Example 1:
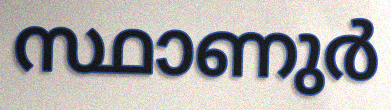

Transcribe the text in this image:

സ്ഥാണുർ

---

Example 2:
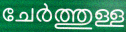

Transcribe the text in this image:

ചേർത്തുള്ള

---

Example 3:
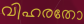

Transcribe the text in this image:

വിഹരതോ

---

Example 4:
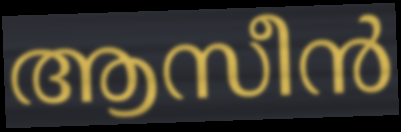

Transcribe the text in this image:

ആസീൻ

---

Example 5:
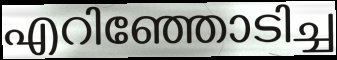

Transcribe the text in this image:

എറിഞ്ഞോടിച്ച